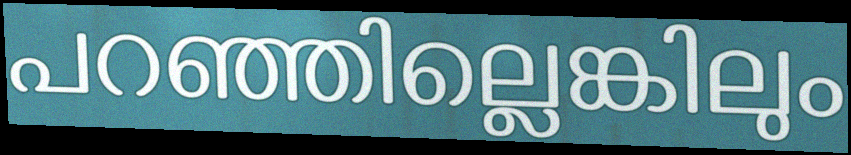
പറഞ്ഞില്ലെങ്കിലും